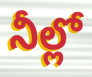
నీల్లో